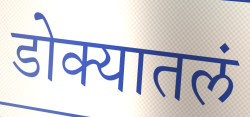
डोक्यातलं